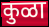
कुळा